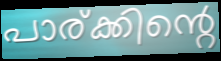
പാര്ക്കിന്റെ